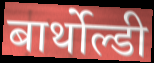
बार्थोल्डी